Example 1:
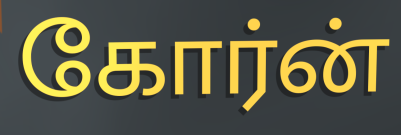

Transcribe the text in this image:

கோர்ன்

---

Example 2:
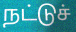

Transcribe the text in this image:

நட்டுச்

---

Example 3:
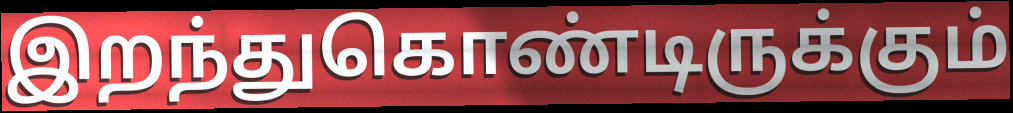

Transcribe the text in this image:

இறந்துகொண்டிருக்கும்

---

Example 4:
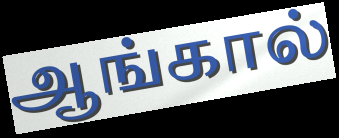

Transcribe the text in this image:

ஆங்கால்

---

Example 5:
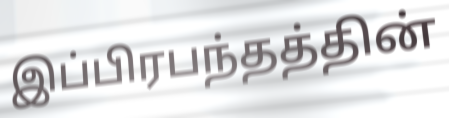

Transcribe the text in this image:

இப்பிரபந்தத்தின்